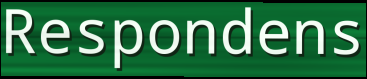
Respondens